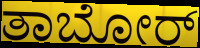
ತಾಬೋರ್